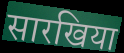
सारखिया